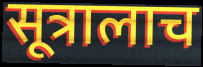
सूत्रालाच